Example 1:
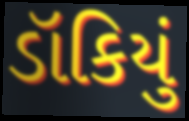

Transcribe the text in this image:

ડૉકિયું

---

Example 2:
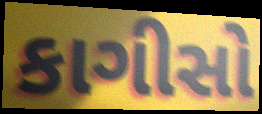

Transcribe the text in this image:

કાગીસો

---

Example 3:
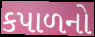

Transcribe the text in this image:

કપાળનો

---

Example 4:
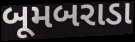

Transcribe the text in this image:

બૂમબરાડા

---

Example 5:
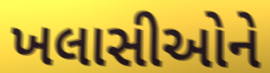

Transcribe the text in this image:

ખલાસીઓને